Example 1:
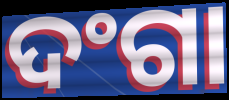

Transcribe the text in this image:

ଦଂଗା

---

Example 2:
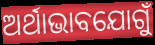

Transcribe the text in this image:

ଅର୍ଥାଭାବଯୋଗୁଁ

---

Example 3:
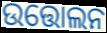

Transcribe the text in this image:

ଉତ୍ତୋଲନ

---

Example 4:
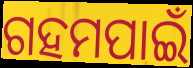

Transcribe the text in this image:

ଗହମପାଇଁ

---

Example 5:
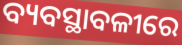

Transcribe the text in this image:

ବ୍ୟବସ୍ଥାବଳୀରେ